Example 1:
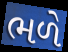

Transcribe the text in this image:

ભળે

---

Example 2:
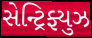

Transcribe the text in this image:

સેન્ટ્રિફ્યુઝ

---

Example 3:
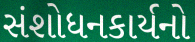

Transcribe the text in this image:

સંશોધનકાર્યનો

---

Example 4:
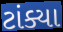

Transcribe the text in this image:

ટાંક્યા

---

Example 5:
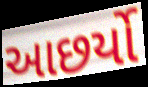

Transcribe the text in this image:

આછર્યો